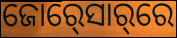
ଜୋର୍‍ସୋର୍‌ରେ